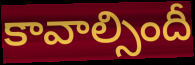
కావాల్సిందీ